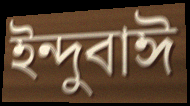
ইন্দুবাঈ